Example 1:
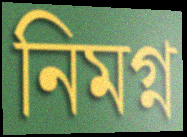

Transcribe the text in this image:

নিমগ্ন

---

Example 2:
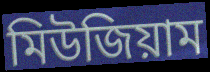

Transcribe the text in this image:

মিউজিয়াম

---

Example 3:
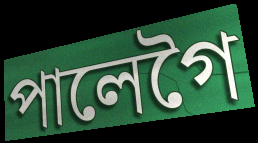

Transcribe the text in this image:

পালেগৈ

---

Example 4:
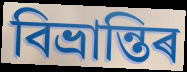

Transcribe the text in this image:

বিভ্ৰান্তিৰ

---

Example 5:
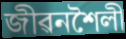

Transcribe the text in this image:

জীৱনশৈলী